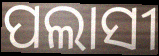
ପଲାସୀ